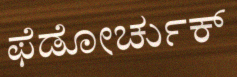
ಫೆಡೋರ್ಚುಕ್